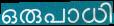
ഒരുപാധി